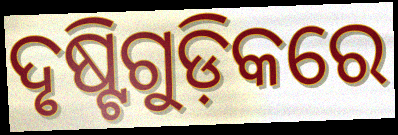
ଦୃଷ୍ଟିଗୁଡ଼ିକରେ